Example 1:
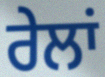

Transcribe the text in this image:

ਰੇਲਾਂ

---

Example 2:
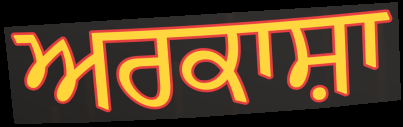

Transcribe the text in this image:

ਅਰਕਾਸ਼ਾ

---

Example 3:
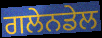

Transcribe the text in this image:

ਗਲੇਨਡੇਲ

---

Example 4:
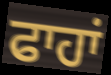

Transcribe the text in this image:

ਫਾਹਾਂ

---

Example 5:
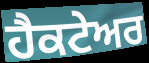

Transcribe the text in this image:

ਹੈਕਟੇਅਰ